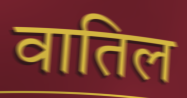
वातिल